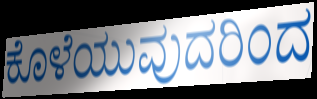
ಕೊಳೆಯುವುದರಿಂದ